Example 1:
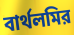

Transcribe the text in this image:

বার্থলমির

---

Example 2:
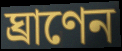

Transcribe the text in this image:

ঘ্রাণেন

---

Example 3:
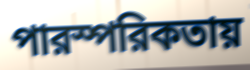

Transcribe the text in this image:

পারস্পরিকতায়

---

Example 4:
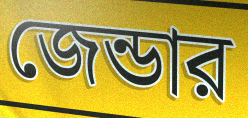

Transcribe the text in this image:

জেন্ডার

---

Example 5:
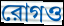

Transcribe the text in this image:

রোগও